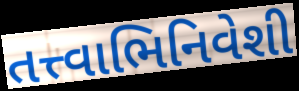
તત્ત્વાભિનિવેશી